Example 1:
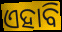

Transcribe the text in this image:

ଏହାବି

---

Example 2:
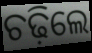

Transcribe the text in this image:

ଚଢ଼ିଲେ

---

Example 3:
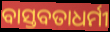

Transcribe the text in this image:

ବାସ୍ତବତାଧର୍ମୀ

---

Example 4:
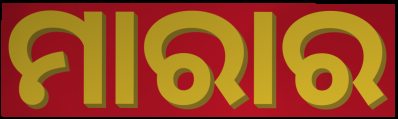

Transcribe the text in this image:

ମାରାର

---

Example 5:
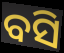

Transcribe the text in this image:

ବସି